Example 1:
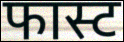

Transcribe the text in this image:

फास्ट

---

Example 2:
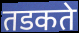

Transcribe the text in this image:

तडकते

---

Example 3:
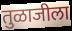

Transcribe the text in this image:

तुळाजीला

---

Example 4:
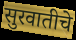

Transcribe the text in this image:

सुरवातीचे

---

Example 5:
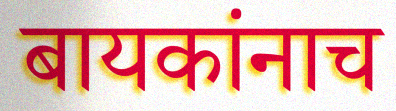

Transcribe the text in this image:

बायकांनाच